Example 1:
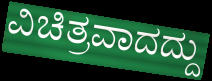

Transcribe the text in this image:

ವಿಚಿತ್ರವಾದದ್ದು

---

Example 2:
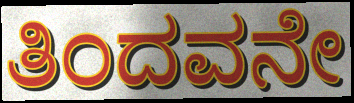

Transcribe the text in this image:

ತಿಂದವನೇ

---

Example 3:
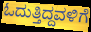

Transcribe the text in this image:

ಓದುತ್ತಿದ್ದವಳಿಗೆ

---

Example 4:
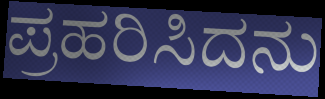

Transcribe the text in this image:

ಪ್ರಹರಿಸಿದನು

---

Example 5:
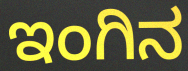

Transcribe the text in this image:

ಇಂಗಿನ